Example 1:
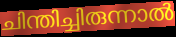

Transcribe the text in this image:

ചിന്തിച്ചിരുന്നാൽ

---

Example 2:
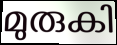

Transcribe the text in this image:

മുരുകി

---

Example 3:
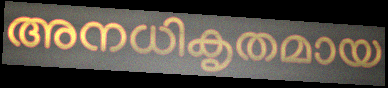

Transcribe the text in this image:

അനധികൃതമായ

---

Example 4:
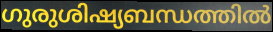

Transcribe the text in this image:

ഗുരുശിഷ്യബന്ധത്തിൽ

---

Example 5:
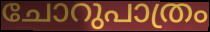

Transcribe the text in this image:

ചോറുപാത്രം